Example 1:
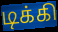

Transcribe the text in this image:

டிக்கி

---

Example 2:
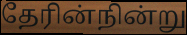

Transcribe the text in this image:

தேரின்நின்று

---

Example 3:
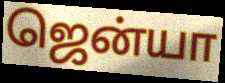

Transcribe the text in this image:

ஜென்யா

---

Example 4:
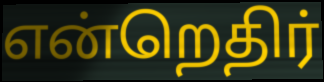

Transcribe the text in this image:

என்றெதிர்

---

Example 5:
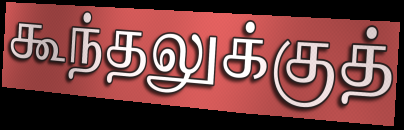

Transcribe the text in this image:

கூந்தலுக்குத்